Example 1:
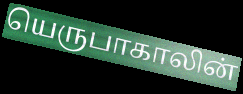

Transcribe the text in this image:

யெருபாகாலின்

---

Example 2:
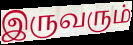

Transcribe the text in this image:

இருவரும்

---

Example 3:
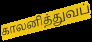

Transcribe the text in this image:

காலனித்துவப்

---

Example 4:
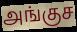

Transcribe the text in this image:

அங்குச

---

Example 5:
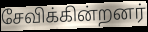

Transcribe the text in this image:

சேவிக்கின்றனர்